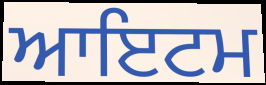
ਆਇਟਮ